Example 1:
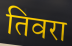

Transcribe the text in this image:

तिवरा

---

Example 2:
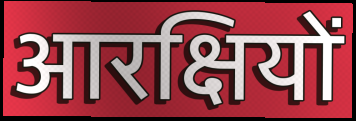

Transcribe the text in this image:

आरक्षियों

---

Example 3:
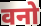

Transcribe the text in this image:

वनो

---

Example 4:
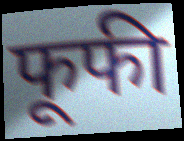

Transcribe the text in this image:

फूफी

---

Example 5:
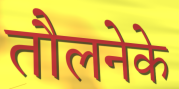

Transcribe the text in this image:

तौलनेके